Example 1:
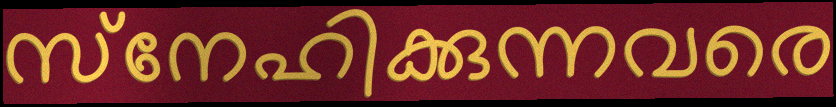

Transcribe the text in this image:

സ്‌നേഹിക്കുന്നവരെ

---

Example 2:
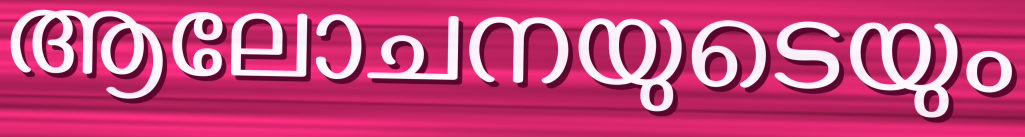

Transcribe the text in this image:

ആലോചനയുടെയും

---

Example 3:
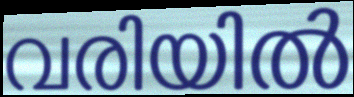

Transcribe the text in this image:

വരിയിൽ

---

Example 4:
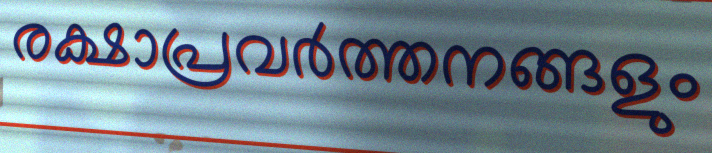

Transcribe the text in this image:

രക്ഷാപ്രവർത്തനങ്ങളും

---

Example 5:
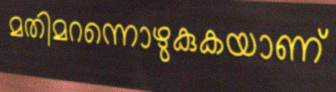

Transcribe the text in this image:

മതിമറന്നൊഴുകുകയാണ്